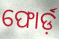
ଫୋର୍ଡ଼